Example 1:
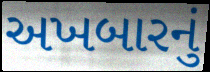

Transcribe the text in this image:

અખબારનું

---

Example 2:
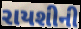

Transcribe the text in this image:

રાયશીની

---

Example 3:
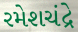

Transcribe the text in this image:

રમેશચંદ્રે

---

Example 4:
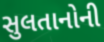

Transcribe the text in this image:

સુલતાનોની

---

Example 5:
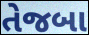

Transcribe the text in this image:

તેજબા